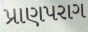
પ્રાણપરાગ